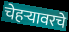
चेहऱ्यावरचे